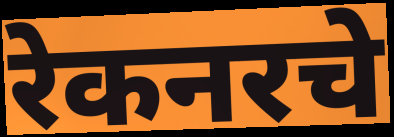
रेकनरचे